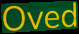
Oved